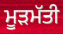
ਮੂੜਮੱਤੀ